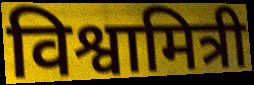
विश्वामित्री